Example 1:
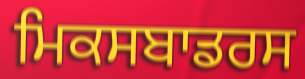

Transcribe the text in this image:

ਮਿਕਸਬਾਡਰਸ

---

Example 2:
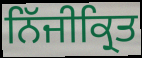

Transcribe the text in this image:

ਨਿੱਜੀਕ੍ਰਿਤ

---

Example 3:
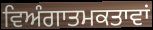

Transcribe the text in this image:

ਵਿਅੰਗਾਤਮਕਤਾਵਾਂ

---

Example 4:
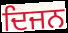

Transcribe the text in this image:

ਦਿਜਨ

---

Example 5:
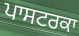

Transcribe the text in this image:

ਪਾਸਟਰਕਾ